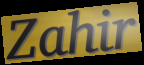
Zahir